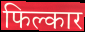
फिल्कार